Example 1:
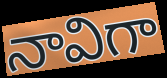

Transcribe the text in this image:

నావిగా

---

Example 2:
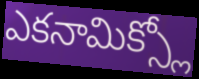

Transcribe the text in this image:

ఎకనామిక్స్లో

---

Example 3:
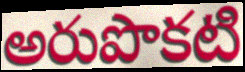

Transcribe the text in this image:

అరుపొకటి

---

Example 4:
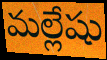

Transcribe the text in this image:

మల్లేషు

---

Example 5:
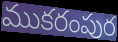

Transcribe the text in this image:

ముకరంపుర